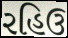
રહિઉ